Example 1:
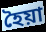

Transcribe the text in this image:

হৈয়া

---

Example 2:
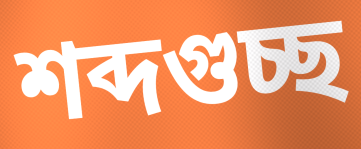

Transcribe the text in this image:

শব্দগুচ্ছ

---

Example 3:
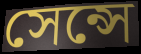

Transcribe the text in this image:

সেন্সে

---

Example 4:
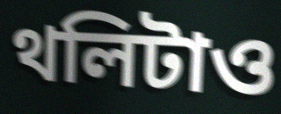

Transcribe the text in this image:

থলিটাও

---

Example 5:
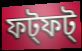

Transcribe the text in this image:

ফট্ফট্